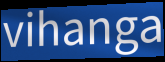
vihanga